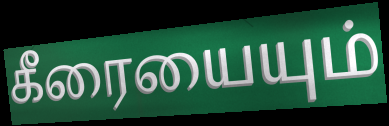
கீரையையும்